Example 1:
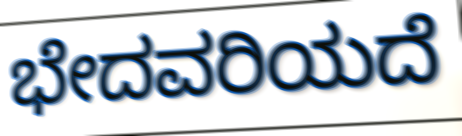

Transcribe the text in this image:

ಭೇದವರಿಯದೆ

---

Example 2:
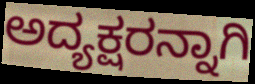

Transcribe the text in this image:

ಅದ್ಯಕ್ಷರನ್ನಾಗಿ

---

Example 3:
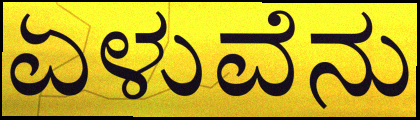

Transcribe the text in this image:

ಏಳುವೆನು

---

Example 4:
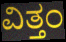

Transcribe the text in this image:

ವಿತ್ತಂ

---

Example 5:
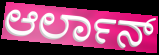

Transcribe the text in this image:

ಆರ್ಲಾನ್